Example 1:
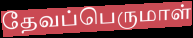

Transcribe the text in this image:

தேவப்பெருமாள்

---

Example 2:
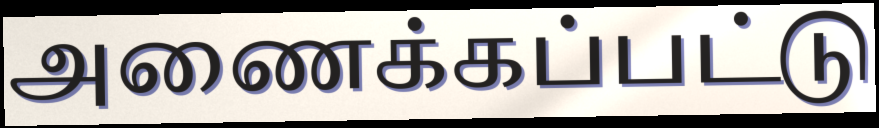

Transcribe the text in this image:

அணைக்கப்பட்டு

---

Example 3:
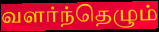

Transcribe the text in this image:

வளர்ந்தெழும்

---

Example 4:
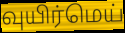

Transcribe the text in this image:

வுயிர்மெய்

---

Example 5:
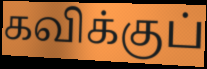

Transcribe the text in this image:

கவிக்குப்